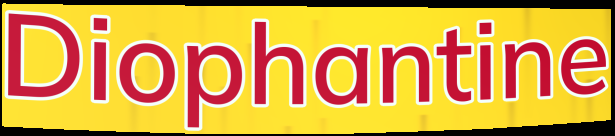
Diophantine